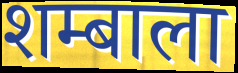
शम्बाला